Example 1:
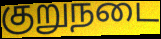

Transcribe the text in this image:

குறுநடை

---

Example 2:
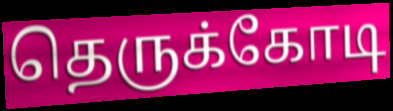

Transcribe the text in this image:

தெருக்கோடி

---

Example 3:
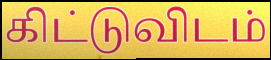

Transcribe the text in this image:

கிட்டுவிடம்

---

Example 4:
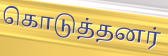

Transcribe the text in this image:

கொடுத்தனர்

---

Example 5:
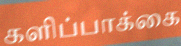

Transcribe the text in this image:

களிப்பாக்கை